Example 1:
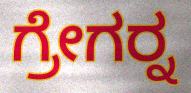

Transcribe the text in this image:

ಗ್ರೇಗರ್‍ನ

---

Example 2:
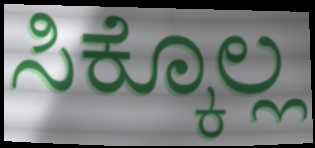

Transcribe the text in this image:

ಸಿಕ್ಕೊಲ್ಲ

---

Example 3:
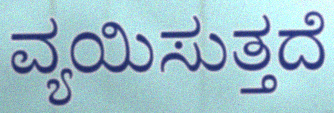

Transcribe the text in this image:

ವ್ಯಯಿಸುತ್ತದೆ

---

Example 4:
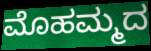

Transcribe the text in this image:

ಮೊಹಮ್ಮದ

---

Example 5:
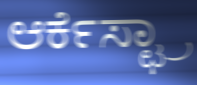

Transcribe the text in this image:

ಆರ್ಕೆಸ್ಟ್ರಾ